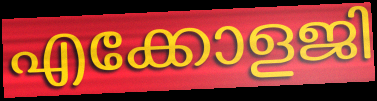
എക്കോളജി